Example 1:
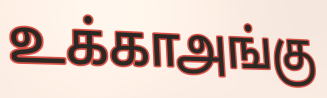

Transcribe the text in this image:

உக்காஅங்கு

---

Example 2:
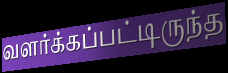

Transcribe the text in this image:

வளர்க்கப்பட்டிருந்த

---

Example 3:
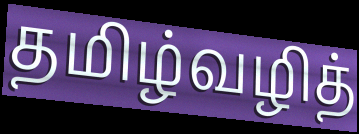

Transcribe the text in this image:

தமிழ்வழித்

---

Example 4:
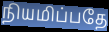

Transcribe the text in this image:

நியமிப்பதே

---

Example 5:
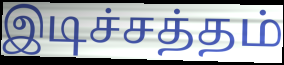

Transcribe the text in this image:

இடிச்சத்தம்